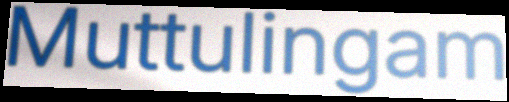
Muttulingam